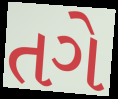
તગે